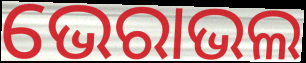
ଭେରାଭଲ